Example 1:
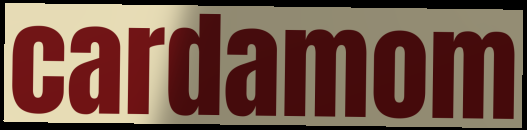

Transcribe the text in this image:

cardamom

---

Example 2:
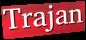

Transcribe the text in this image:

Trajan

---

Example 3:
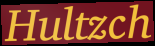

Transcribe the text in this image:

Hultzch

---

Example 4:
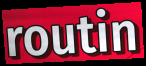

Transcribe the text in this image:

routin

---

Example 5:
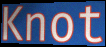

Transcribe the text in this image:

Knot